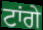
ਟਾਂਗੇ